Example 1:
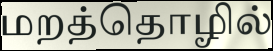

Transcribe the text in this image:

மறத்தொழில்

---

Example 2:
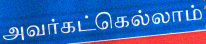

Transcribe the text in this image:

அவர்கட்கெல்லாம்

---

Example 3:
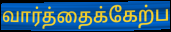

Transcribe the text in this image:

வார்த்தைக்கேற்ப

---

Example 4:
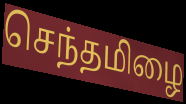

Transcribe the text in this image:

செந்தமிழை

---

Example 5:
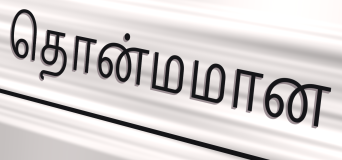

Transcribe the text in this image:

தொன்மமான